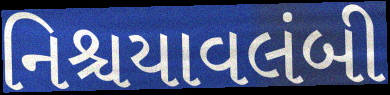
નિશ્ચયાવલંબી